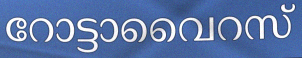
റോട്ടാവൈറസ്